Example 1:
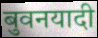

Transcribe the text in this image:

बुवनयादी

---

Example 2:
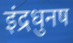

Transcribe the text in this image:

इंद्रधुनष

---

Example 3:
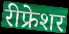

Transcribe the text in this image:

रीफ्रेशर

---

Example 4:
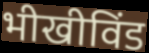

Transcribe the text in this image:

भीखीविंड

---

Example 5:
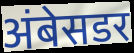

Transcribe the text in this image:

अंबेसडर